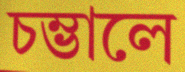
চম্ভালে